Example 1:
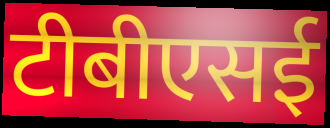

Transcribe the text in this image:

टीबीएसई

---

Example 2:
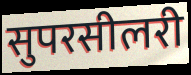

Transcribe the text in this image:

सुपरसीलरी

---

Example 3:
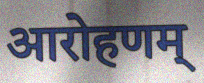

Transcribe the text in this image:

आरोहणम्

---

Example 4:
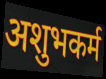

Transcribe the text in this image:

अशुभकर्म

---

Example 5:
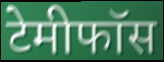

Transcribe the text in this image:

टेमीफॉस